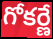
గోకర్ణే